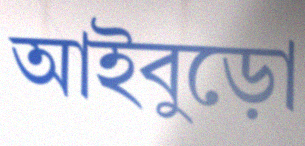
আইবুড়ো